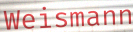
Weismann